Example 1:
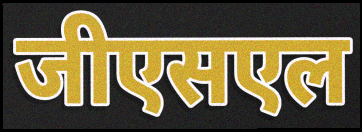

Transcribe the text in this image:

जीएसएल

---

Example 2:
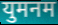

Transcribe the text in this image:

युमनम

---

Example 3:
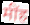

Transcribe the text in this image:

मींह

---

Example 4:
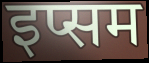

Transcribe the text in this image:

इप्सम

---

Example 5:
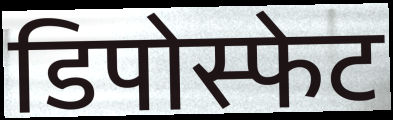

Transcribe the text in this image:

डिपोस्फेट